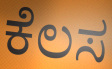
ಕೆಲಸ